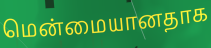
மென்மையானதாக